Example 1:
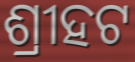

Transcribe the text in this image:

ଶ୍ରୀହଟ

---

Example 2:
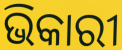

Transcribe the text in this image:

ଭିକାରୀ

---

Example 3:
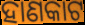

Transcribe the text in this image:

ହାଣକାଟ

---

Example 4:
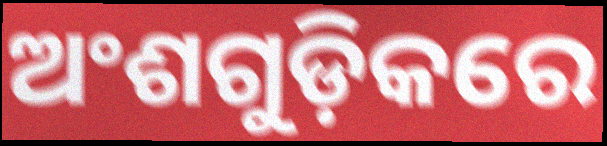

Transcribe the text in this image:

ଅଂଶଗୁଡ଼ିକରେ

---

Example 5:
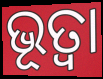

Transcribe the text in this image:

ଭୂତ୍ୱା